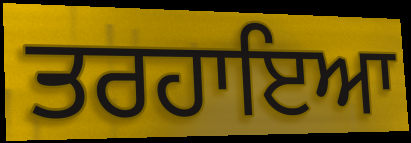
ਤਰਹਾਇਆ